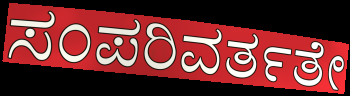
ಸಂಪರಿವರ್ತತೇ